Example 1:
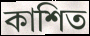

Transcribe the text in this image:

কাশিত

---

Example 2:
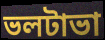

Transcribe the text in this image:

ভলটাভা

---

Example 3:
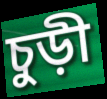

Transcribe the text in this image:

চুড়ী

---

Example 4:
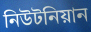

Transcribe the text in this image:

নিউটনিয়ান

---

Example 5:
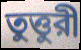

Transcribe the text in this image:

তুত্তুরী